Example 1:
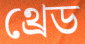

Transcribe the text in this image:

থ্রেড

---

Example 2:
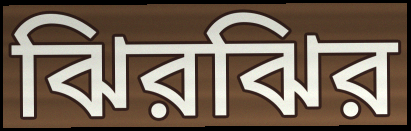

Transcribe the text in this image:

ঝিরঝির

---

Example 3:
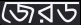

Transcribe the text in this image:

জেরড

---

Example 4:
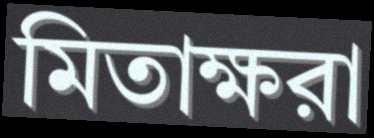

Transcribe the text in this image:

মিতাক্ষরা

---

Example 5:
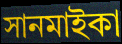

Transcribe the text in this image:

সানমাইকা